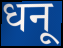
धनू